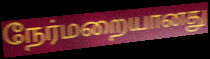
நேர்மறையானது